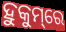
ହୁକୁମ୍‌ରେ